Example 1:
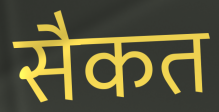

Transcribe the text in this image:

सैकत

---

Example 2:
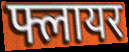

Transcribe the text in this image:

फ्लायर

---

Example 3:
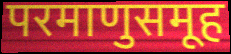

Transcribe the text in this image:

परमाणुसमूह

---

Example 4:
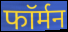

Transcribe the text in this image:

फॉर्मन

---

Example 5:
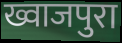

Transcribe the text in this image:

ख्वाजपुरा